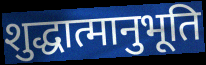
शुद्धात्मानुभूति